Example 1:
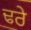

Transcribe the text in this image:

ਢਰੇ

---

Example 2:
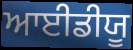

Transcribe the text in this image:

ਆਈਡੀਯੂ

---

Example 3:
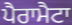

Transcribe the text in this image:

ਪੈਰਾਮੈਟਾ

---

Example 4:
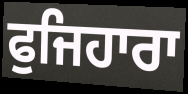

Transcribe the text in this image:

ਫੁਜਿਹਾਰਾ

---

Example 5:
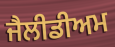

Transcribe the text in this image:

ਜੈਲੀਡੀਅਮ